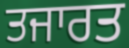
ਤਜਾਰਤ